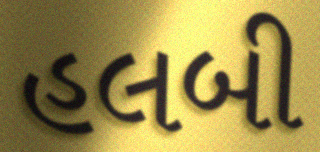
હલબી